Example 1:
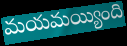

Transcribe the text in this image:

మయమయ్యింది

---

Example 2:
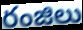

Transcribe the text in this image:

రంజిలు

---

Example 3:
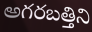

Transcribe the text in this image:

అగరబత్తిని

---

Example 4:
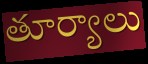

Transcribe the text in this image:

తూర్యాలు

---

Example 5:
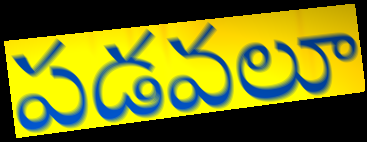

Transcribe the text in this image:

పడవలూ